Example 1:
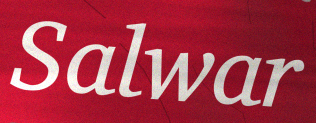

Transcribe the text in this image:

Salwar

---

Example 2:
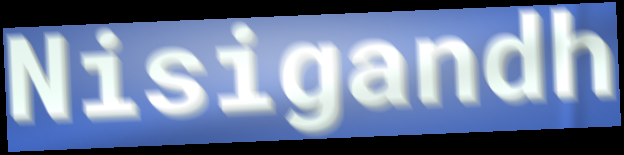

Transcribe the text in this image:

Nisigandh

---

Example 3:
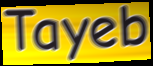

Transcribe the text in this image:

Tayeb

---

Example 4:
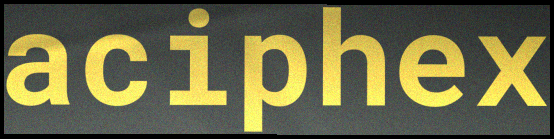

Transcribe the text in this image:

aciphex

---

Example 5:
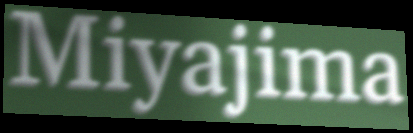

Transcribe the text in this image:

Miyajima